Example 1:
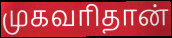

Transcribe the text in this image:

முகவரிதான்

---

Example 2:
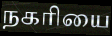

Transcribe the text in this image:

நகரியை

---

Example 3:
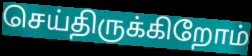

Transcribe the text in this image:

செய்திருக்கிறோம்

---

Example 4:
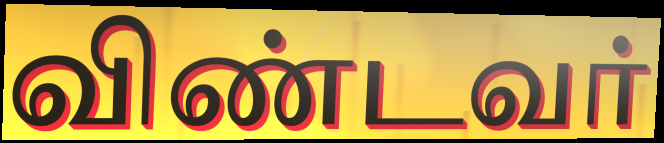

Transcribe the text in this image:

விண்டவர்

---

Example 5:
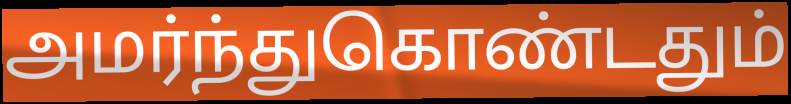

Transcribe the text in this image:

அமர்ந்துகொண்டதும்